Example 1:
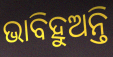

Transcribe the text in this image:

ଭାବିହୁଅନ୍ତି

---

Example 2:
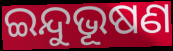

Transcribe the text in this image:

ଇନ୍ଦୁଭୂଷଣ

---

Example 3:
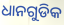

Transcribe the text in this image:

ଧାନଗୁଡିକ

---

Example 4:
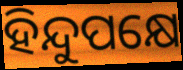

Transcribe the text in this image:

ହିନ୍ଦୁପକ୍ଷେ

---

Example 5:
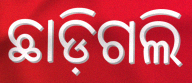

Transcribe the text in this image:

ଛାଡ଼ିଗଲି